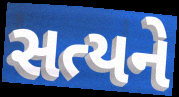
સત્યને